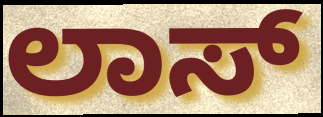
ಲಾಸ್